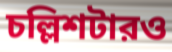
চল্লিশটারও